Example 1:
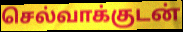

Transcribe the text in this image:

செல்வாக்குடன்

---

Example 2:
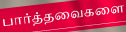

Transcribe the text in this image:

பார்த்தவைகளை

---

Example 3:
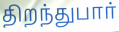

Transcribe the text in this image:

திறந்துபார்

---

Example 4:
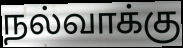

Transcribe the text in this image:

நல்வாக்கு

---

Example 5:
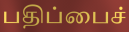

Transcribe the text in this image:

பதிப்பைச்